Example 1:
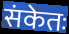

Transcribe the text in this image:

संकेतः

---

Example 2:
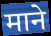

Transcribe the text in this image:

माने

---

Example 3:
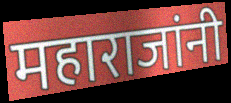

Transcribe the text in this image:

महाराजांनी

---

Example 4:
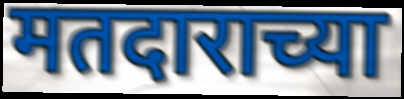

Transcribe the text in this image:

मतदाराच्या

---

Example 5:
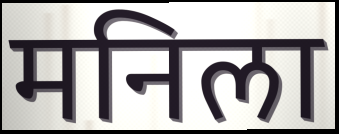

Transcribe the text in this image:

मनिला